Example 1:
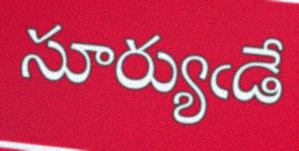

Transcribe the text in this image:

సూర్యుఁడే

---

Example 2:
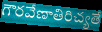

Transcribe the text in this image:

గౌరవేణాతిరిచ్యతే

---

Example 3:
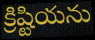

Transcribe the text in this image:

క్రిష్టియను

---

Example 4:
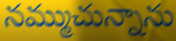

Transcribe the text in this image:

నమ్ముచున్నాను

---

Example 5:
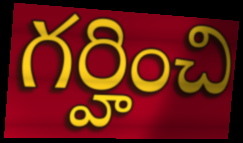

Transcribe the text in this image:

గర్హించి